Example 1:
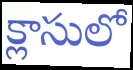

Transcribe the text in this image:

క్లాసులో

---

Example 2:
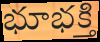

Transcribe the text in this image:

భూభక్తి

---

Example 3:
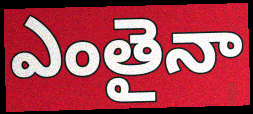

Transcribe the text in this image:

ఎంతైనా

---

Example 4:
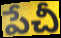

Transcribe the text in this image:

పేచీ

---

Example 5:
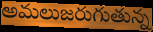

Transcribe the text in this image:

అమలుజరుగుతున్న